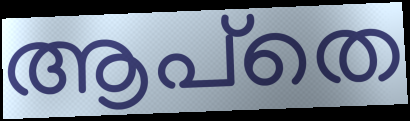
ആപ്‌തെ